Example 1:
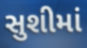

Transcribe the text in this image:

સુશીમાં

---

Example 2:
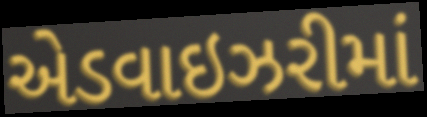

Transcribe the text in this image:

એડવાઇઝરીમાં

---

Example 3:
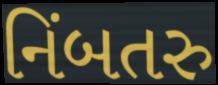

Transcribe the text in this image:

નિંબતરુ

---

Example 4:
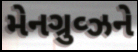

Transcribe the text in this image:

મેનગ્રુવ્ઝને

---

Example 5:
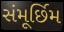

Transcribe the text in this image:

સંમૂર્છિમ